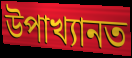
উপাখ্যানত